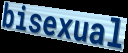
bisexual